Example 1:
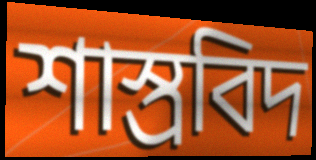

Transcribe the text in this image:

শাস্ত্ৰবিদ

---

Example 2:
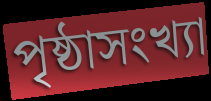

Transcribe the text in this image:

পৃষ্ঠাসংখ্যা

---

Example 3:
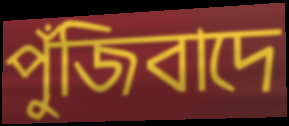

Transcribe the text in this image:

পুঁজিবাদে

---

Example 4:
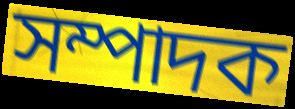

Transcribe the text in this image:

সম্পাদক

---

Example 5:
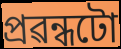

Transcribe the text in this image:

প্ৰৱন্ধটো